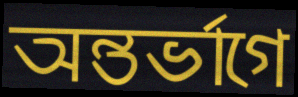
অন্তর্ভাগে